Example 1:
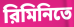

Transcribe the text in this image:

রিমিনিতে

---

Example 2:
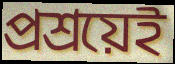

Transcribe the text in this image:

প্রশ্রয়েই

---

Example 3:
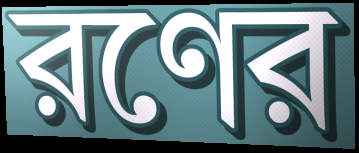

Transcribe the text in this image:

রণের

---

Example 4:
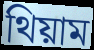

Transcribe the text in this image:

থিয়াম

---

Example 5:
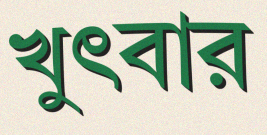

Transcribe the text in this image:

খুৎবার